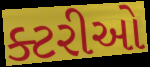
ક્ટરીઓ